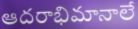
ఆదరాభిమానాలే